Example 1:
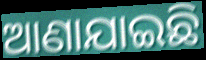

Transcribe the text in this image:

ଆଣାଯାଇଛି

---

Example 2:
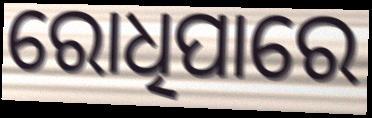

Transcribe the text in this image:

ରୋଧିପାରେ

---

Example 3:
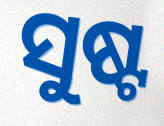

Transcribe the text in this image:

ସୁଷ୍ଟ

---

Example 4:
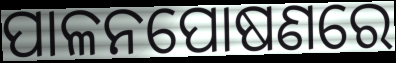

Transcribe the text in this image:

ପାଳନପୋଷଣରେ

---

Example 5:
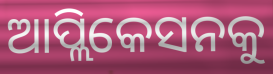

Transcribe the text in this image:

ଆପ୍ଲିକେସନକୁ